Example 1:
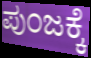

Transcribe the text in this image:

ಪುಂಜಕ್ಕೆ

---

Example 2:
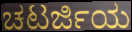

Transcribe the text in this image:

ಚಟರ್ಜಿಯ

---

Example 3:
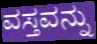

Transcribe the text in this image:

ವಸ್ತವನ್ನು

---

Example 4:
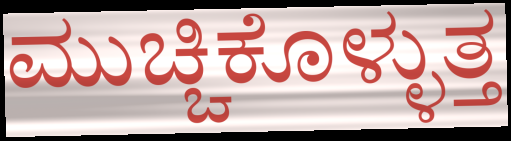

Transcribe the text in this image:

ಮುಚ್ಚಿಕೊಳ್ಳುತ್ತ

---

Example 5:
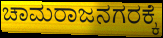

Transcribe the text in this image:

ಚಾಮರಾಜನಗರಕ್ಕೆ